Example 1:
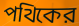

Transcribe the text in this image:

পথিকের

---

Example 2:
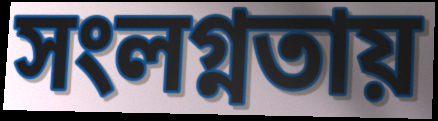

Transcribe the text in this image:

সংলগ্নতায়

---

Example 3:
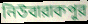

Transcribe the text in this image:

নিউবারাকপুর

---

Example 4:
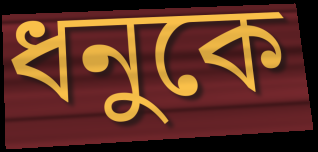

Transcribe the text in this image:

ধনুকে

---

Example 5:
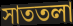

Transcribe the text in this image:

সাততলা